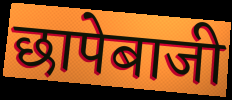
छापेबाजी